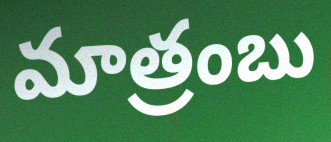
మాత్రంబు